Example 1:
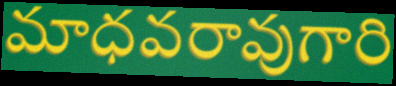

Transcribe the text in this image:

మాధవరావుగారి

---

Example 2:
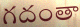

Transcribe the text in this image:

గదంతా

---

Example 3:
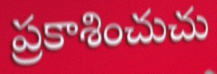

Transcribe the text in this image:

ప్రకాశించుచు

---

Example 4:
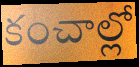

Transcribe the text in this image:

కంచాల్లో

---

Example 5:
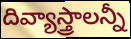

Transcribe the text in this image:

దివ్యాస్త్రాలన్నీ